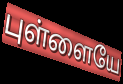
புள்ளையே